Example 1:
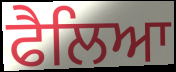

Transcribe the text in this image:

ਫੈਲਿਆ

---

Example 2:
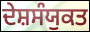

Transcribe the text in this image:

ਦੇਸ਼ਸੰਯੁਕਤ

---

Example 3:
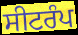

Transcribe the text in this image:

ਸੀਟਰੰਪ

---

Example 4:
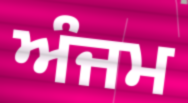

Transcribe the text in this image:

ਅੰਜਮ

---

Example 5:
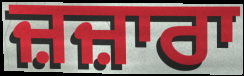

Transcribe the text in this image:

ਜ਼ਜ਼ਾਰਾ